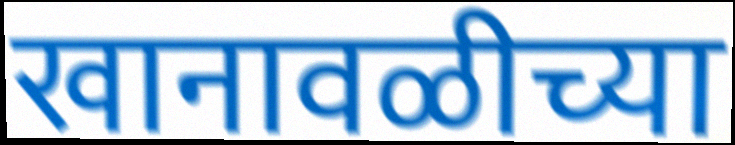
खानावळीच्या